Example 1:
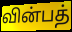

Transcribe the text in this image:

வின்பத்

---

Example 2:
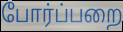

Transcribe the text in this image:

போர்ப்பறை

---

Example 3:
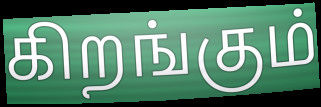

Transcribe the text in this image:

கிறங்கும்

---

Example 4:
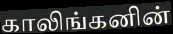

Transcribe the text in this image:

காலிங்கனின்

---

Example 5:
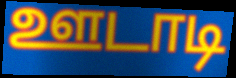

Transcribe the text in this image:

ஊடாடி